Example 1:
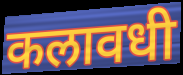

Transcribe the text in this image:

कलावधी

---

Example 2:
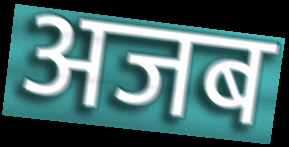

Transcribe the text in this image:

अजब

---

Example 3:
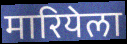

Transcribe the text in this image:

मारियेला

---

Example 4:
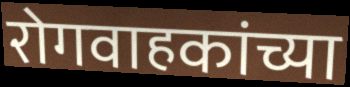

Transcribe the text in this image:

रोगवाहकांच्या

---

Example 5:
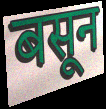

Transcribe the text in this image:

बसून